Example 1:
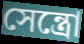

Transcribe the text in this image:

সেন্ত্রো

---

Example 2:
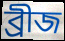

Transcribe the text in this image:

ব্রীজ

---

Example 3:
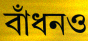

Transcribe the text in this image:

বাঁধনও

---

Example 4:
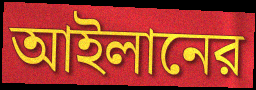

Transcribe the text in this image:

আইলানের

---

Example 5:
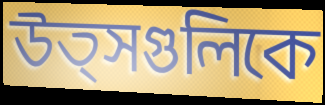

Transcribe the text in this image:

উত্সগুলিকে